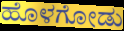
ಹೊಳಗೋಡು